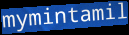
mymintamil